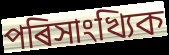
পৰিসাংখ্যিক